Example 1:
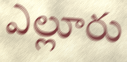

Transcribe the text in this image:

ఎల్లూరు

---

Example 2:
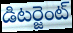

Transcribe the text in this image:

డిటర్జెంట్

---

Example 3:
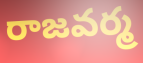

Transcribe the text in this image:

రాజవర్మ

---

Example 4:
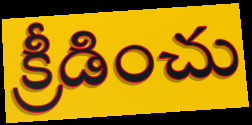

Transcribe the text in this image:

క్రీడించు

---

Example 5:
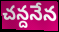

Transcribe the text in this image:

చన్దనేన